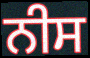
ਨੀਸ